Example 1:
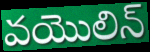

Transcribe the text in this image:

వయొలిన్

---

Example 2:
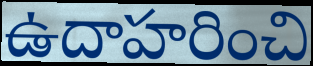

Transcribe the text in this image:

ఉదాహరించి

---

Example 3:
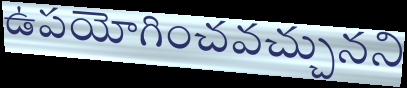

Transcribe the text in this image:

ఉపయోగించవచ్చునని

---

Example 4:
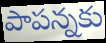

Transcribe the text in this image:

పాపన్నకు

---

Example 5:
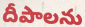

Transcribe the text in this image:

దీపాలను